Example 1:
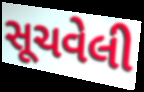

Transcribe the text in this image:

સૂચવેલી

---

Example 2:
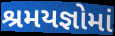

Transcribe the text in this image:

શ્રમયજ્ઞોમાં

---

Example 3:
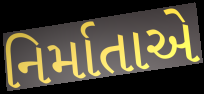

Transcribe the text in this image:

નિર્માતાએ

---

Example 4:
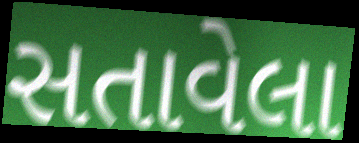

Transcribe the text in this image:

સતાવેલા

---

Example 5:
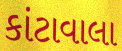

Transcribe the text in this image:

કાંટાવાલા